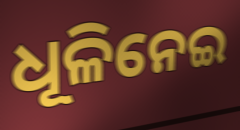
ଧୂଳିନେଇ